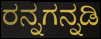
ರನ್ನಗನ್ನಡಿ